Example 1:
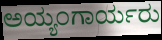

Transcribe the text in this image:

ಅಯ್ಯಂಗಾರ್ಯರು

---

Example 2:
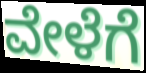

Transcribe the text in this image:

ವೇಳೆಗೆ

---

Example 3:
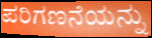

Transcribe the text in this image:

ಪರಿಗಣನೆಯನ್ನು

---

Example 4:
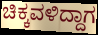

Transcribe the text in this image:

ಚಿಕ್ಕವಳಿದ್ದಾಗ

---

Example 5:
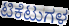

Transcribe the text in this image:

ಟಿಕೆಟುಗಳ